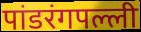
पांडरंगपल्ली